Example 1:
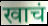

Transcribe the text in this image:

खाचं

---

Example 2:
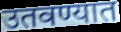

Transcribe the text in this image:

उतवण्यात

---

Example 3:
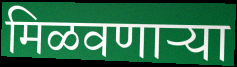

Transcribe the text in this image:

मिळवणाऱ्या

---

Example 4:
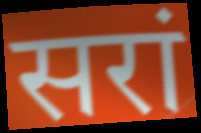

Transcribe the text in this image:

सरां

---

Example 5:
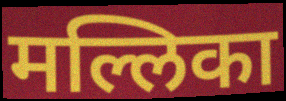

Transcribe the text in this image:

मल्लिका